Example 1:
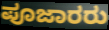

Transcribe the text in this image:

ಪೂಜಾರರು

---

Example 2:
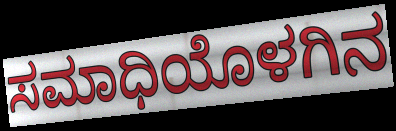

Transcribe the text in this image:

ಸಮಾಧಿಯೊಳಗಿನ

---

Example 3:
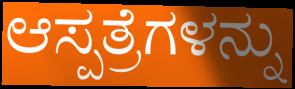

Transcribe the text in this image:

ಆಸ್ಪತ್ರೆಗಳನ್ನು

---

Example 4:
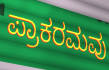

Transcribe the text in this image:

ಪ್ರಾಕರಮವು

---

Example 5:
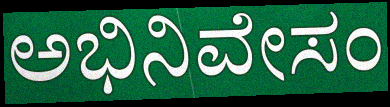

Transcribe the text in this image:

ಅಭಿನಿವೇಸಂ